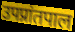
उपप्रांतपाल